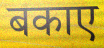
बकाए